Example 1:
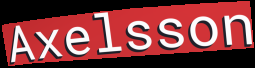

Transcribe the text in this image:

Axelsson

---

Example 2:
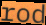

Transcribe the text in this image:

rod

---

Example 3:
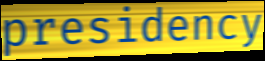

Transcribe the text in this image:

presidency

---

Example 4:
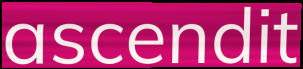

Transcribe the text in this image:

ascendit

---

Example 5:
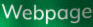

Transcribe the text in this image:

Webpage